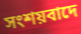
সংশয়বাদে